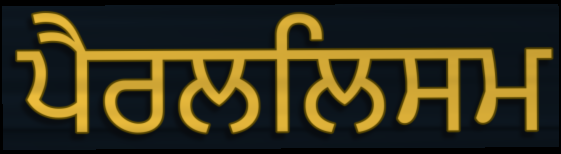
ਪੈਰਲਲਿਸਮ